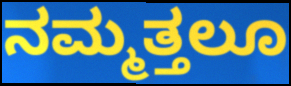
ನಮ್ಮತ್ತಲೂ